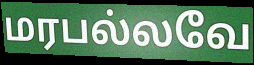
மரபல்லவே